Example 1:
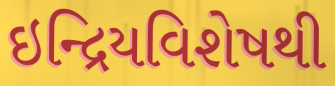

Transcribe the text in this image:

ઇન્દ્રિયવિશેષથી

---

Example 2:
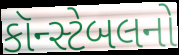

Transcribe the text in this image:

કૉન્સ્ટેબલનો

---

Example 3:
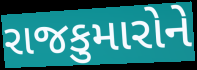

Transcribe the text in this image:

રાજકુમારોને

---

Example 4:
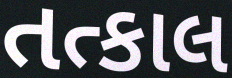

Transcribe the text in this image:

તત્કાલ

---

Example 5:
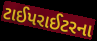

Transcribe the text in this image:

ટાઈપરાઈટરના